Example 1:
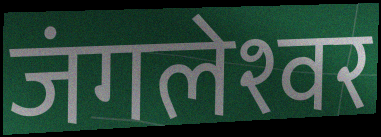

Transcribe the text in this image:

जंगलेश्वर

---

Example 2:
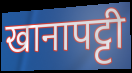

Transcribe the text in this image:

खानापट्टी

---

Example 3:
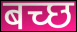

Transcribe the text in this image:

बच्छ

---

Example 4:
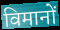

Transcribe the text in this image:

विमानों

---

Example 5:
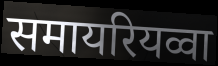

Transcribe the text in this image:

समायरियव्वा